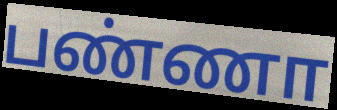
பண்ணா